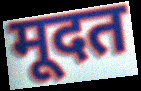
मूदत